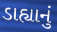
ડાહ્યાનું